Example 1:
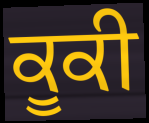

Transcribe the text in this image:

ਕੂਕੀ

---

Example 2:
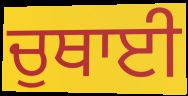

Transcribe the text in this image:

ਚੁਥਾਈ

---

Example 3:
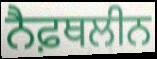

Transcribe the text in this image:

ਨੈਫ਼ਥਲੀਨ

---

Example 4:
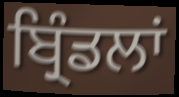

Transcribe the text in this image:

ਬ੍ਰਿੰਡਲਾਂ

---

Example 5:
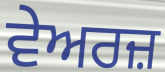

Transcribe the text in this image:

ਵੇਅਰਜ਼